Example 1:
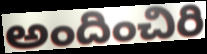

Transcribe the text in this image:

అందించిరి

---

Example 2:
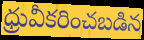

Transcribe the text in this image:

ధ్రువీకరించబడిన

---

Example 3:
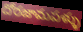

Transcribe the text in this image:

దోరజామపళ్ళు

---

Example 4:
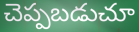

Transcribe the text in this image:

చెప్పబడుచూ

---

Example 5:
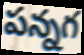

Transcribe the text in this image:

పన్నగ